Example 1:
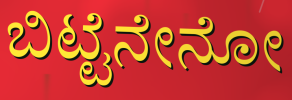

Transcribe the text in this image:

ಬಿಟ್ಟೆನೇನೋ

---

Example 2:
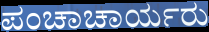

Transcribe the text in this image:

ಪಂಚಾಚಾರ್ಯರು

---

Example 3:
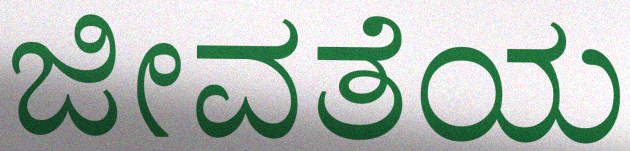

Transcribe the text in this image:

ಜೀವತೆಯ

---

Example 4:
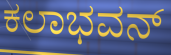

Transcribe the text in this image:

ಕಲಾಭವನ್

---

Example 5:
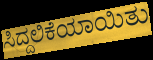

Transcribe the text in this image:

ಸಿದ್ದಲಿಕೆಯಾಯಿತು